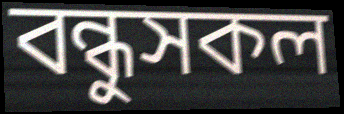
বন্ধুসকল